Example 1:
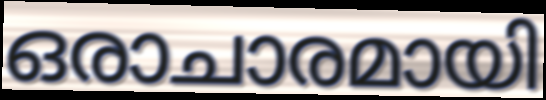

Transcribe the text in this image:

ഒരാചാരമായി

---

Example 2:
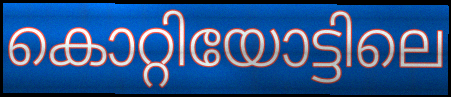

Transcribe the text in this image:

കൊറ്റിയോട്ടിലെ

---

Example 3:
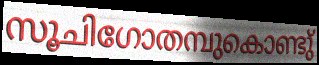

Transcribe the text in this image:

സൂചിഗോതമ്പുകൊണ്ടു്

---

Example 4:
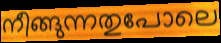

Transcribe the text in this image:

നീങ്ങുന്നതുപോലെ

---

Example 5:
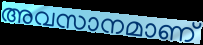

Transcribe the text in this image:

അവസാനമാണ്